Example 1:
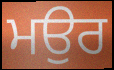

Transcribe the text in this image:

ਮਉਰ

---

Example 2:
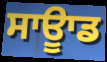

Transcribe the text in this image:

ਸਾਊਾਡ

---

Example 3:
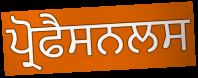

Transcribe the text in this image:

ਪ੍ਰੋਫੈਸਨਲਸ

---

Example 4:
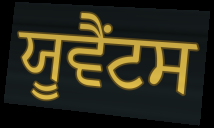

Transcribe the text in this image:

ਯੂਵੈਂਟਸ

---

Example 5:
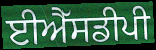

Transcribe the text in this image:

ਈਐੱਸਡੀਪੀ